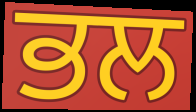
ਭਲ